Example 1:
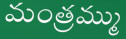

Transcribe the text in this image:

మంత్రమ్ము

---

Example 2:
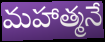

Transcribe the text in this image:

మహాత్మనే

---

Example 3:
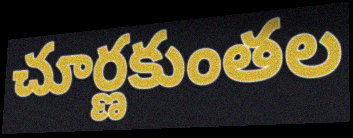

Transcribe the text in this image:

చూర్ణకుంతల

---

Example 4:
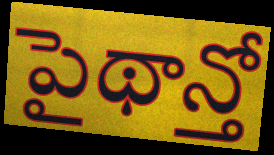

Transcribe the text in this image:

పైథాన్తో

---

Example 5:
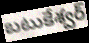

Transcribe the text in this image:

బటుకేశ్వర్